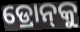
ଡ୍ରୋନ୍‌କୁ